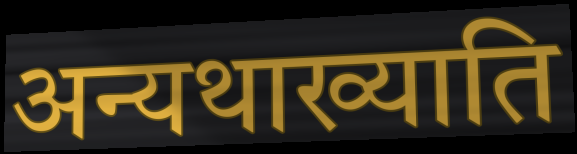
अन्यथाख्याति